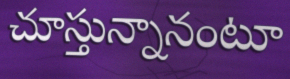
చూస్తున్నానంటూ